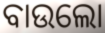
ବାଉଲୋ